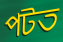
পটত